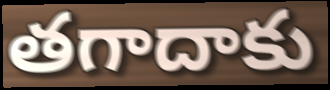
తగాదాకు